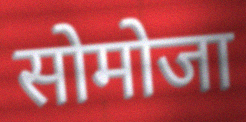
सोमोजा